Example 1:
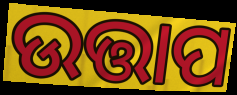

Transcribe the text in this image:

ଉତ୍ତାପ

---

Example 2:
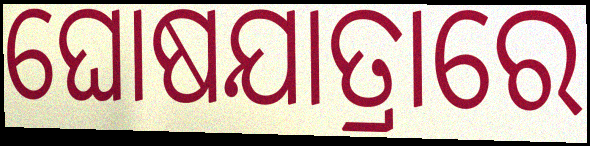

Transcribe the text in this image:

ଘୋଷଯାତ୍ରାରେ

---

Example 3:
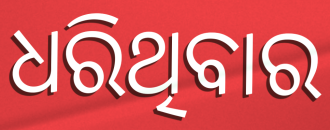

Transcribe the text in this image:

ଧରିଥିବାର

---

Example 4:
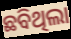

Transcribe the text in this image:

ଛବିଥିଲା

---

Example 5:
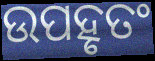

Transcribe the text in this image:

ଉପହୃତଂ